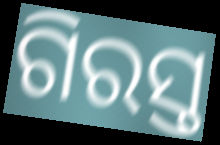
ଗିରସ୍ତ